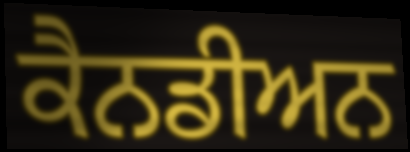
ਕੈਨਡੀਅਨ